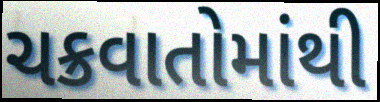
ચક્રવાતોમાંથી